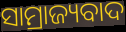
ସାମ୍ରାଜ୍ୟବାଦ